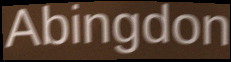
Abingdon